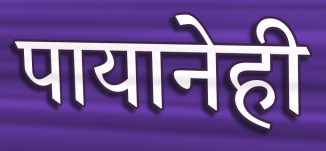
पायानेही